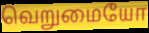
வெறுமையோ